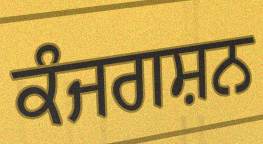
ਕੰਜਗਸ਼ਨ